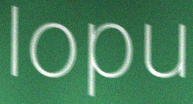
lopu